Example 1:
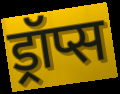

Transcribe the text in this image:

ड्रॉप्स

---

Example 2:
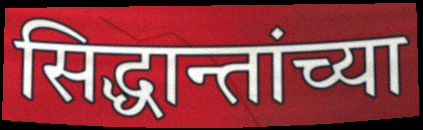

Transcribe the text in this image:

सिद्धान्तांच्या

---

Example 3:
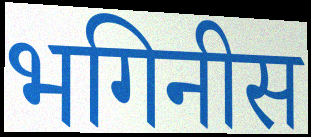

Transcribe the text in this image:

भगिनीस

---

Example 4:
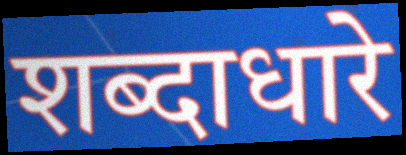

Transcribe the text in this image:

शब्दाधारे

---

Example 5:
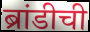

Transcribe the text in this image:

ब्रांडीची